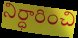
నిర్ధారించి